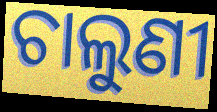
ଚାଲୁଣୀ